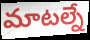
మాటల్నే